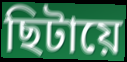
ছিটায়ে